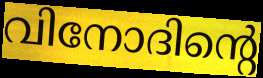
വിനോദിന്റെ